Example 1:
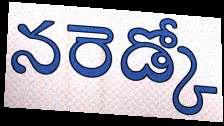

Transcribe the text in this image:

నరెడ్కో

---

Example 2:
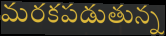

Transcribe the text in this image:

మరకపడుతున్న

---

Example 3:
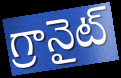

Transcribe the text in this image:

గ్రానైట్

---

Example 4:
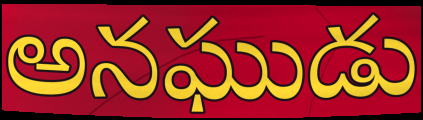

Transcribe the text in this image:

అనఘుడు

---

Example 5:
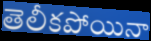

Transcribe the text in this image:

తెలీకపోయినా